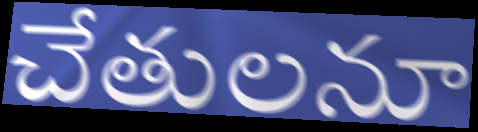
చేతులనూ